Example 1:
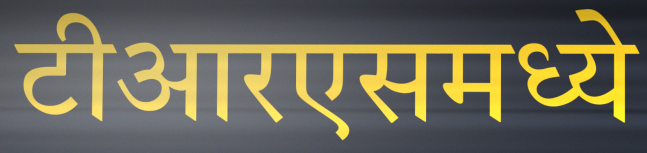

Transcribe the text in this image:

टीआरएसमध्ये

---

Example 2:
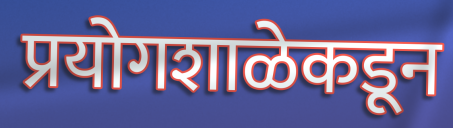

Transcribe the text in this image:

प्रयोगशाळेकडून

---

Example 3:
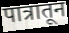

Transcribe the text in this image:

पात्रातून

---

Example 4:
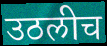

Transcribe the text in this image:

उठलीच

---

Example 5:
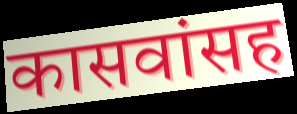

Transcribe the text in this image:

कासवांसह